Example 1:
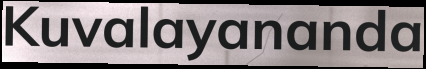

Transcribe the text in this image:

Kuvalayananda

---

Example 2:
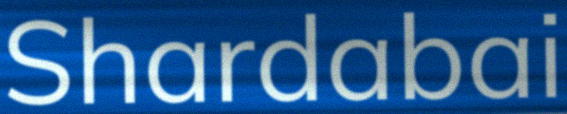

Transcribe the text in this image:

Shardabai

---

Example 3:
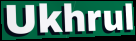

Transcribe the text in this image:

Ukhrul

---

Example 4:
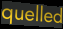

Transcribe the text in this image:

quelled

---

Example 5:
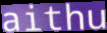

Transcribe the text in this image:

aithu